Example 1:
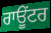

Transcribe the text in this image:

ਰਾਊਂਟਰ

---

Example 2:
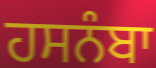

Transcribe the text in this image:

ਹਸਨੰਬਾ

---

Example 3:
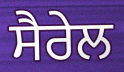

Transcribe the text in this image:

ਸੈਰੇਲ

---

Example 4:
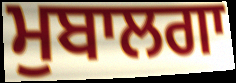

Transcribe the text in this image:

ਮੁਬਾਲਗਾ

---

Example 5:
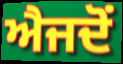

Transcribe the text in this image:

ਐਜਦੋਂ